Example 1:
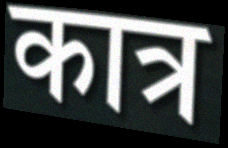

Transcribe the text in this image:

कात्र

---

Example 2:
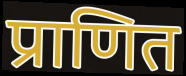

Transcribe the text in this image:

प्राणित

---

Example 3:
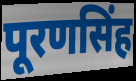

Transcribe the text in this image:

पूरणसिंह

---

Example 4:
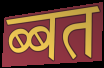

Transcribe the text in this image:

ब्बत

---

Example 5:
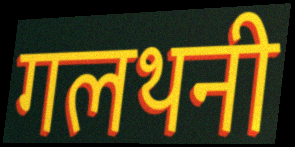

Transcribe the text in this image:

गलथनी